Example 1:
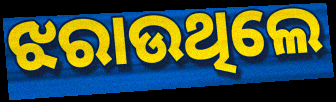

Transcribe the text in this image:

ଝରାଉଥିଲେ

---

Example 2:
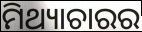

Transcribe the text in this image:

ମିଥ୍ୟାଚାରର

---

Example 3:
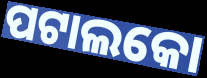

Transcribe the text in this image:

ପଟାଲକୋ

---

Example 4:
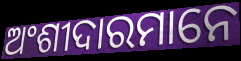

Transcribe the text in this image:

ଅଂଶୀଦାରମାନେ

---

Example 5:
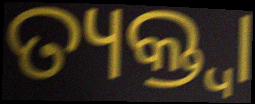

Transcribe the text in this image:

ତ୍ୟକ୍ତ୍ୱା